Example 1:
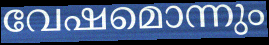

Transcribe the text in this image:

വേഷമൊന്നും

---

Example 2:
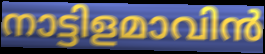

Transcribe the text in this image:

നാട്ടിളമാവിൻ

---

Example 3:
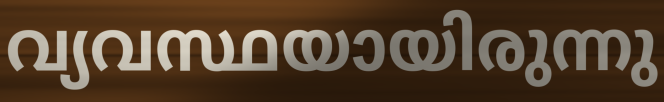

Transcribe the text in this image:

വ്യവസ്ഥയായിരുന്നു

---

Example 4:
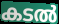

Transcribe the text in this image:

കടൽ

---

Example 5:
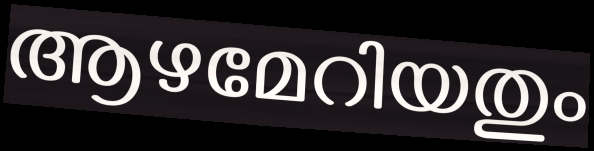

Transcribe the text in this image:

ആഴമേറിയതും